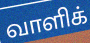
வாளிக்